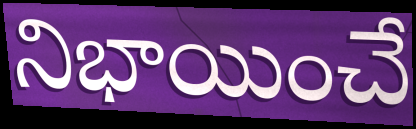
నిభాయించే